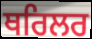
ਥਰਿਲਰ